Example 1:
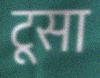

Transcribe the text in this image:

टूसा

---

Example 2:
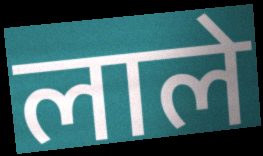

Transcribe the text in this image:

लाले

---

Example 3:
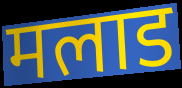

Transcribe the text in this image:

मलाड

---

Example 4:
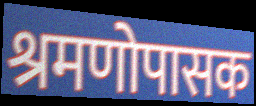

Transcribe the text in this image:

श्रमणोपासक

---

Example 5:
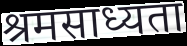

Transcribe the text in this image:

श्रमसाध्यता